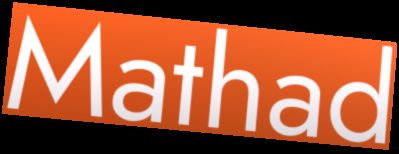
Mathad